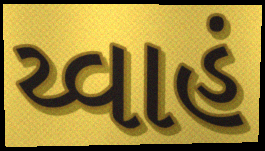
ય્વાહં